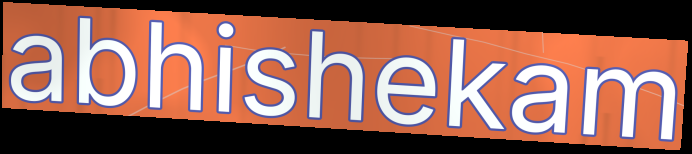
abhishekam